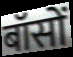
बॉसों